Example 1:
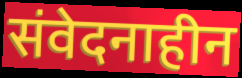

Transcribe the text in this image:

संवेदनाहीन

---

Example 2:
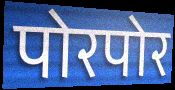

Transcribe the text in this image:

पोरपोर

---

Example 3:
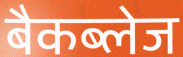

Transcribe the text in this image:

बैकब्लेज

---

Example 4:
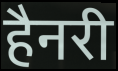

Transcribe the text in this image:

हैनरी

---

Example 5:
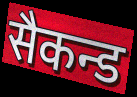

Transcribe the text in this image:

सैकन्ड